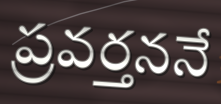
ప్రవర్తననే